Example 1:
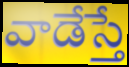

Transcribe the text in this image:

వాడేస్తే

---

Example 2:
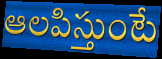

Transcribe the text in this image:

ఆలపిస్తుంటే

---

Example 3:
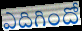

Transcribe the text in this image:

ఎదిగిందో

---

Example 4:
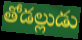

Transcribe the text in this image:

తోడల్లుడు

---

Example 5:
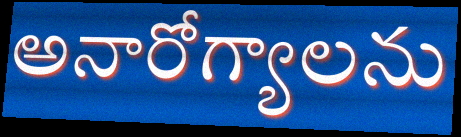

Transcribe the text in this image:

అనారోగ్యాలను